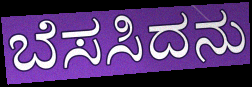
ಬೆಸಸಿದನು